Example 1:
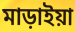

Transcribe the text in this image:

মাড়াইয়া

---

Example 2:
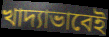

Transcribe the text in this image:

খাদ্যাভাবেই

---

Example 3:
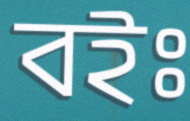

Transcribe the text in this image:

বইঃ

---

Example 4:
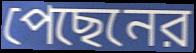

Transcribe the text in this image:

পেছেনের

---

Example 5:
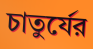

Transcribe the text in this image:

চাতুর্যের